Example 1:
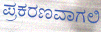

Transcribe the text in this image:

ಪ್ರಕರಣವಾಗಲಿ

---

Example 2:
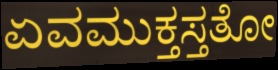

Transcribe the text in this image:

ಏವಮುಕ್ತಸ್ತತೋ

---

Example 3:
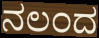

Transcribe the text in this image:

ನಲಂದ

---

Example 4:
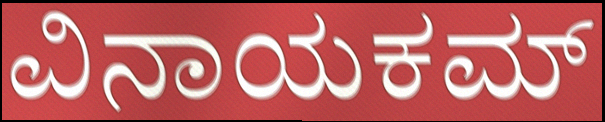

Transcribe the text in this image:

ವಿನಾಯಕಮ್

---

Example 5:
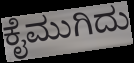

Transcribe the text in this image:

ಕೈಮುಗಿದು